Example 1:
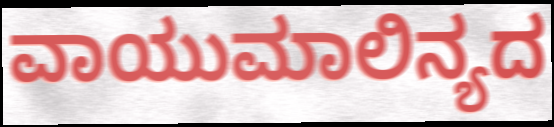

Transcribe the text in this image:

ವಾಯುಮಾಲಿನ್ಯದ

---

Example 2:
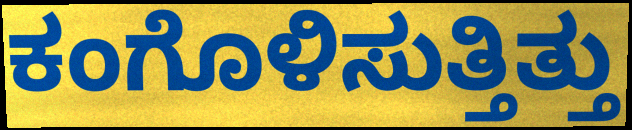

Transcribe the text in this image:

ಕಂಗೊಳಿಸುತ್ತಿತ್ತು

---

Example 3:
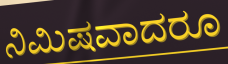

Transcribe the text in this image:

ನಿಮಿಷವಾದರೂ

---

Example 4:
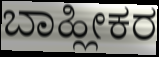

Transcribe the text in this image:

ಬಾಹ್ಲೀಕರ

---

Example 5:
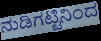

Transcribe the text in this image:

ನುಡಿಗಟ್ಟಿನಿಂದ